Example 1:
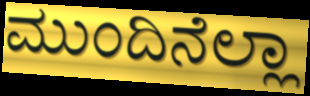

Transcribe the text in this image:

ಮುಂದಿನೆಲ್ಲಾ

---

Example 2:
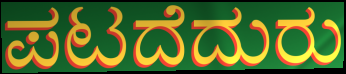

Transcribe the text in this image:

ಪಟದೆದುರು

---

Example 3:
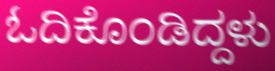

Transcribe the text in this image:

ಓದಿಕೊಂಡಿದ್ದಳು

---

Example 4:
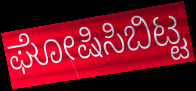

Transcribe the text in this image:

ಘೋಷಿಸಿಬಿಟ್ಟ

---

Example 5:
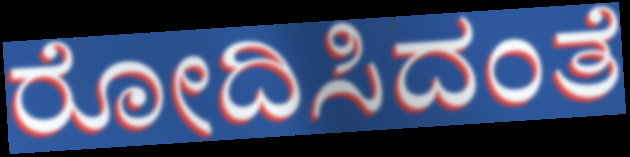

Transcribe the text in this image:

ರೋದಿಸಿದಂತೆ